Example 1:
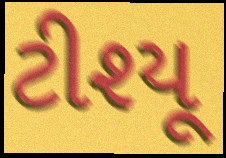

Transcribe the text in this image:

ટીશ્યૂ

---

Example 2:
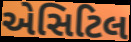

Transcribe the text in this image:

એસિટિલ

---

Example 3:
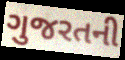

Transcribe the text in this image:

ગુજરતની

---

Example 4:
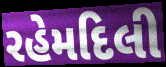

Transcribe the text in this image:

રહેમદિલી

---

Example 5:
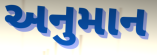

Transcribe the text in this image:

અનુમાન